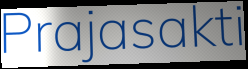
Prajasakti